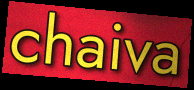
chaiva